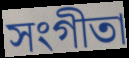
সংগীতা